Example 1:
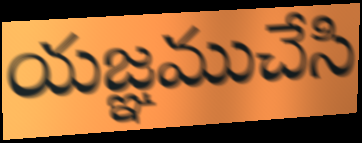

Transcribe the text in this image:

యజ్ఞముచేసి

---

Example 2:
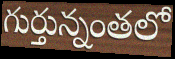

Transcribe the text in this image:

గుర్తున్నంతలో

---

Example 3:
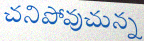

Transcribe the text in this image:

చనిపోవుచున్న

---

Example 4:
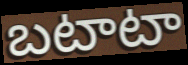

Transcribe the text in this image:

బటాటా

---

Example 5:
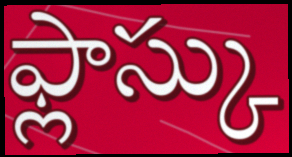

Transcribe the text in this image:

ఫ్లాస్కు